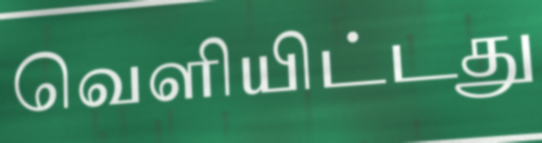
வெளியிட்டது